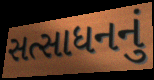
સત્સાધનનું